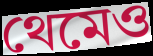
থেমেও